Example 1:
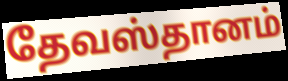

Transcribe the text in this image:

தேவஸ்தானம்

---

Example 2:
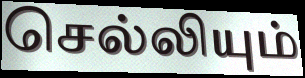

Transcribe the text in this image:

செல்லியும்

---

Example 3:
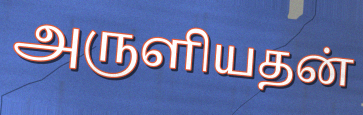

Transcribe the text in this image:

அருளியதன்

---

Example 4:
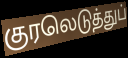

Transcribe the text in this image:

குரலெடுத்துப்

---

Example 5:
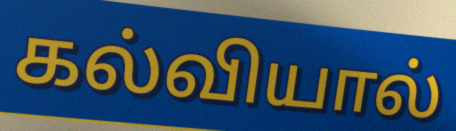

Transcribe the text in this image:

கல்வியால்